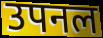
उपनल